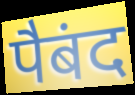
पैबंद